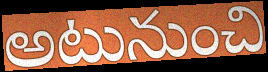
అటునుంచి